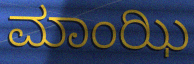
ಮಾಂಝಿ